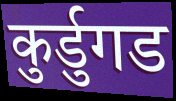
कुर्डुगड